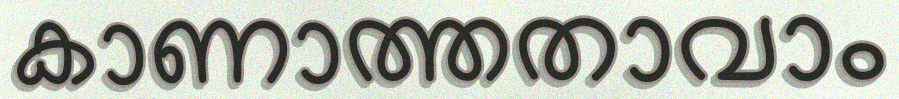
കാണാത്തതാവാം